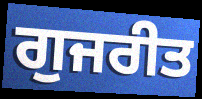
ਗੁਜਰੀਤ